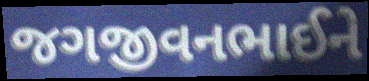
જગજીવનભાઈને